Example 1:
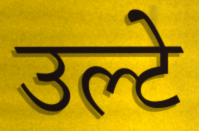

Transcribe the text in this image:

उल्टे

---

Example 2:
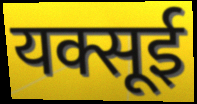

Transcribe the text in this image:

यक्सूई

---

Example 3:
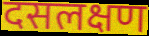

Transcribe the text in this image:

दसलक्षण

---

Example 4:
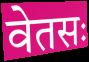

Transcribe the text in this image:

वेतसः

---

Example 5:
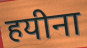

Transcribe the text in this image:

हयीना